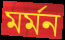
মর্মন